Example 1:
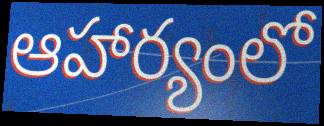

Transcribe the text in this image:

ఆహార్యంలో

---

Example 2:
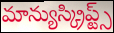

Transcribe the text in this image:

మాన్యుస్క్రిప్ట్స్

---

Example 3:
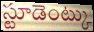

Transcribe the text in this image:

స్టూడెంట్కు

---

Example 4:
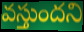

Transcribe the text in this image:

వస్తుందని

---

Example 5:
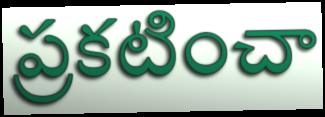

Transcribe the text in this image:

ప్రకటించా